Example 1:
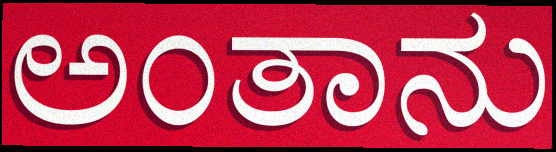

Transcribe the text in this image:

ಅಂತಾನು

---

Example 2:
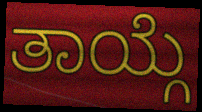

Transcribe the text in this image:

ತಾಯ್ಗೆ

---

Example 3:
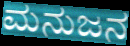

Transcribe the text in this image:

ಮನುಜನ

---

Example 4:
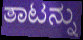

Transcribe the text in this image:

ತಾಟನ್ನು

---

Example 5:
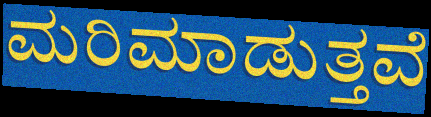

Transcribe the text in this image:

ಮರಿಮಾಡುತ್ತವೆ